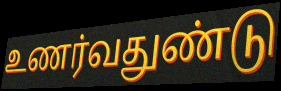
உணர்வதுண்டு